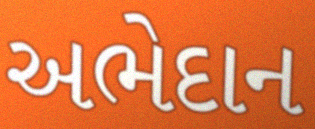
અભેદાન